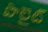
పొలైట్